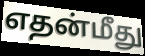
எதன்மீது